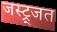
जस्ट्र्जत